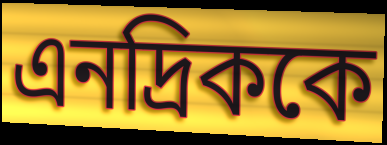
এনদ্রিককে